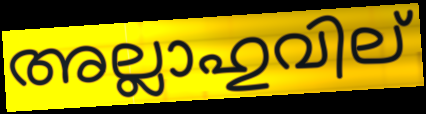
അല്ലാഹുവില്